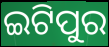
ଇଟିପୁର